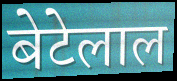
बेटेलाल